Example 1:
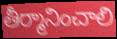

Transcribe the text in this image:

తీర్మానించాలి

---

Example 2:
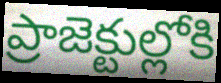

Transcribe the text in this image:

ప్రాజెక్టుల్లోకి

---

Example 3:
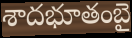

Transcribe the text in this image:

శాదభూతంబై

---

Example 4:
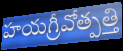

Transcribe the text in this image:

హయగ్రీవోత్పత్తి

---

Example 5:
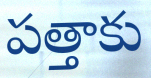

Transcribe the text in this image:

పత్తాకు